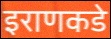
इराणकडे